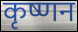
कृष्णन